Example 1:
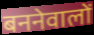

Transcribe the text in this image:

बननेवालों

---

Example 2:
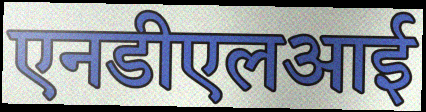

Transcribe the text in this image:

एनडीएलआई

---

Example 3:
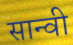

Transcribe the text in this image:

सान्वी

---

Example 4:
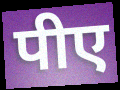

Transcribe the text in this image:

पीए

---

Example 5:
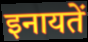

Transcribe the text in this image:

इनायतें